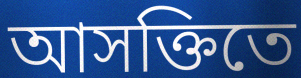
আসক্তিতে